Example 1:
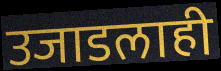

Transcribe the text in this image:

उजाडलाही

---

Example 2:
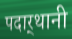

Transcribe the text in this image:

पदार्थानी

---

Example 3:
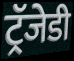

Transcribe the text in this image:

ट्रॅजेडी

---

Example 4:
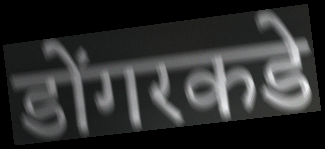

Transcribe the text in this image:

डोंगरकडे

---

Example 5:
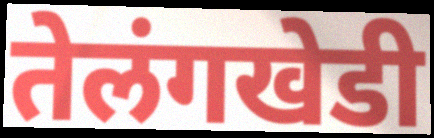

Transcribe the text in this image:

तेलंगखेडी